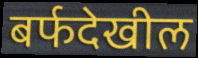
बर्फदेखील